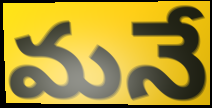
మనే